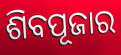
ଶିବପୂଜାର